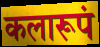
कलारूपं